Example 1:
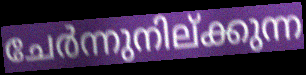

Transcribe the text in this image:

ചേർന്നുനില്ക്കുന്ന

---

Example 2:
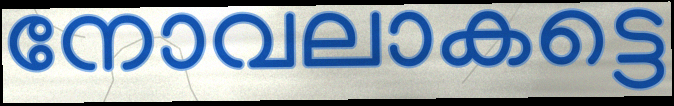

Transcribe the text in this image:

നോവലാകട്ടെ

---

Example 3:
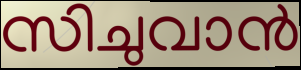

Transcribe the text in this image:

സിചുവാൻ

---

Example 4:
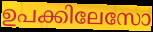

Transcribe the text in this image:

ഉപക്കിലേസോ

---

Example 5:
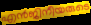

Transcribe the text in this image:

എൻജിനീയരുടെ